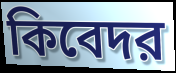
কিবেদর